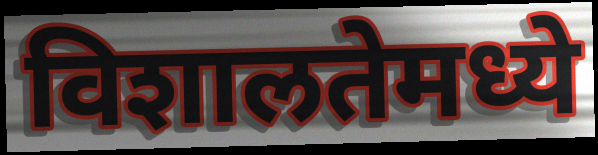
विशालतेमध्ये